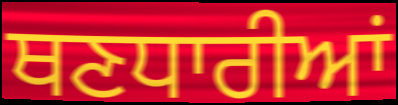
ਥਣਧਾਰੀਆਂ